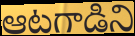
ఆటగాడిని